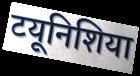
टयूनिशिया